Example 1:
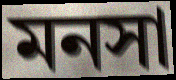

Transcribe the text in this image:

মনসা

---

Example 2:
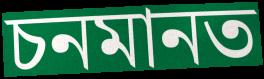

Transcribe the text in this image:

চনমানত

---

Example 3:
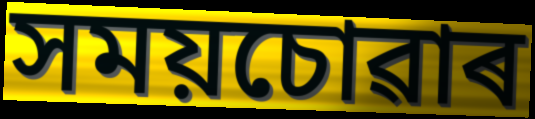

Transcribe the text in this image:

সময়চোৱাৰ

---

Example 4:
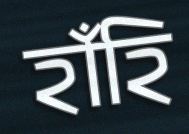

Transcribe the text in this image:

হাঁহি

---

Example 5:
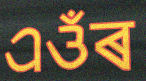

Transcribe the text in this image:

এওঁৰ